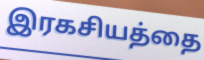
இரகசியத்தை